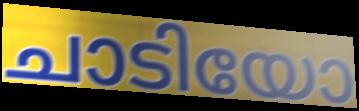
ചാടിയോ